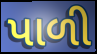
પાળી